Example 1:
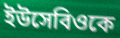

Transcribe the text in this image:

ইউসেবিওকে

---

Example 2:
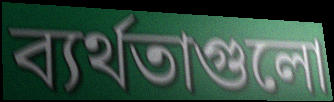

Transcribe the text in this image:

ব্যর্থতাগুলো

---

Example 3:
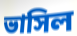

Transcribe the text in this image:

ভাসিল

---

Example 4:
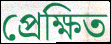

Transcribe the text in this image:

প্রেক্ষিত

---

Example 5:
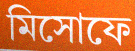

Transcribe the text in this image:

মিসোফে